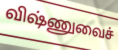
விஷ்ணுவைச்